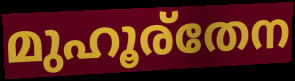
മുഹൂര്തേന